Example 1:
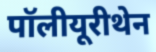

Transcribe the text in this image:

पॉलीयूरीथेन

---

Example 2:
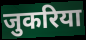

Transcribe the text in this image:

जुकरिया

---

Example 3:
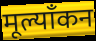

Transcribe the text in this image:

मूल्याँकन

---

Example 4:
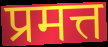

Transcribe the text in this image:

प्रमत्त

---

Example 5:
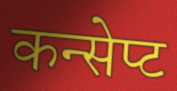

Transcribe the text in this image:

कन्सेप्ट